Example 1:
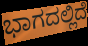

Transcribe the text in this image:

ಭಾಗದಲ್ಲಿದೆ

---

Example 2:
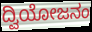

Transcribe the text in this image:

ದ್ವಿಯೋಜನಂ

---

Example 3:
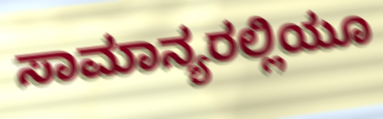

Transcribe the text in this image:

ಸಾಮಾನ್ಯರಲ್ಲಿಯೂ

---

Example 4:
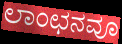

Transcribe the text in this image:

ಲಾಂಛನವೂ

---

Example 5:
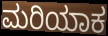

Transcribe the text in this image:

ಮರಿಯಾಕ